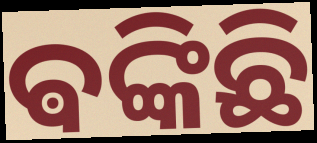
ଵଙ୍କିଛି